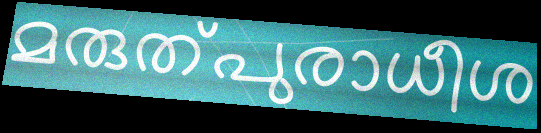
മരുത്പുരാധീശ